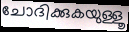
ചോദിക്കുകയുള്ളൂ